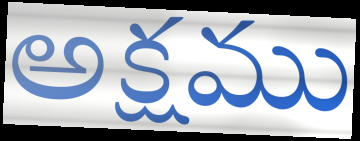
అక్షము